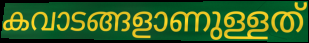
കവാടങ്ങളാണുള്ളത്